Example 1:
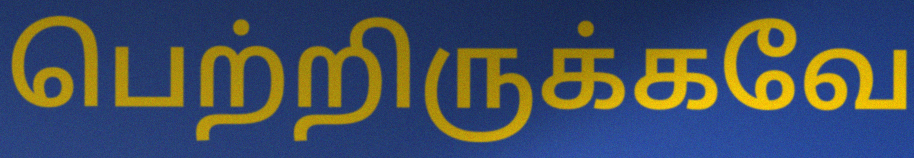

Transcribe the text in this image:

பெற்றிருக்கவே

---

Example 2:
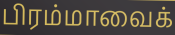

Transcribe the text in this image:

பிரம்மாவைக்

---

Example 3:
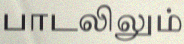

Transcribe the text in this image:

பாடலிலும்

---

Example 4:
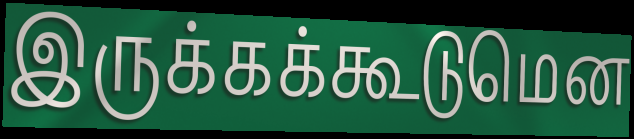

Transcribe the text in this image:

இருக்கக்கூடுமென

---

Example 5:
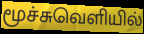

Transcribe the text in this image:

மூச்சுவெளியில்